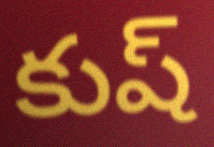
కుష్